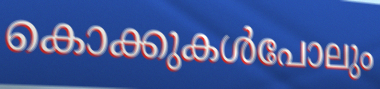
കൊക്കുകൾപോലും